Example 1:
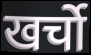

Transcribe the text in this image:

खर्चो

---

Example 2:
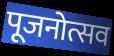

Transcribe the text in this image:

पूजनोत्सव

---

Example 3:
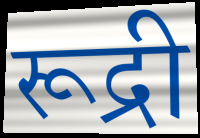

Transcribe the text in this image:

रूद्री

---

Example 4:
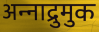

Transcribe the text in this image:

अन्नाद्रुमुक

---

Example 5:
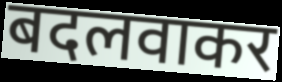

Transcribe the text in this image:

बदलवाकर